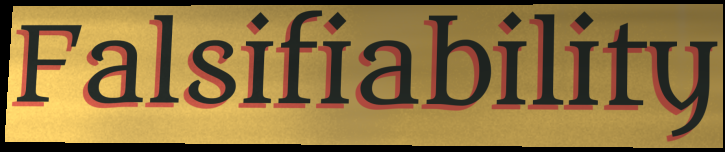
Falsifiability